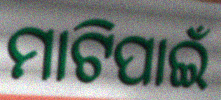
ମାଟିପାଇଁ